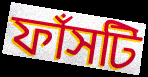
ফাঁসটি